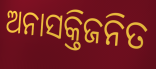
ଅନାସକ୍ତିଜନିତ